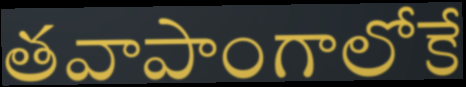
తవాపాంగాలోకే